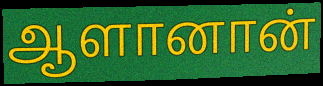
ஆளானான்